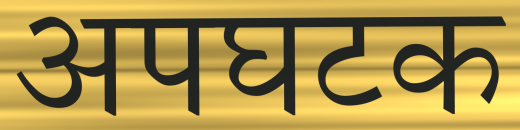
अपघटक